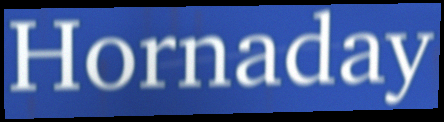
Hornaday